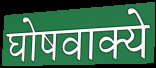
घोषवाक्ये